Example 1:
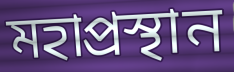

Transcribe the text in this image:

মহাপ্রস্থান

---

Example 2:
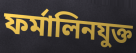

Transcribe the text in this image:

ফর্মালিনযুক্ত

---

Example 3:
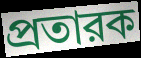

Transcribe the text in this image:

প্রতারক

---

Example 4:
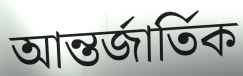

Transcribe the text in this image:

আন্তর্জার্তিক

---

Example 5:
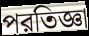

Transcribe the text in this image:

পরতিজ্ঞা